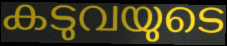
കടുവയുടെ